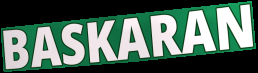
BASKARAN